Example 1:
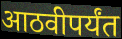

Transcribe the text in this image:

आठवीपर्यंत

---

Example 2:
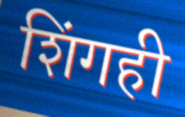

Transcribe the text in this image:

शिंगही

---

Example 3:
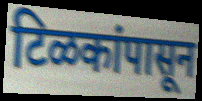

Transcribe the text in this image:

टिळकांपासून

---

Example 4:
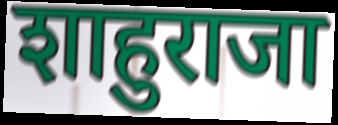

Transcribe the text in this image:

शाहुराजा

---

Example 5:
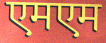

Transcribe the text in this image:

एमएम